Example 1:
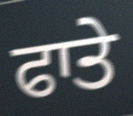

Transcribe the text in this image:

ਫਾਤੇ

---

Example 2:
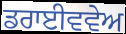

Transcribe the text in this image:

ਡਰਾਈਵਵੇਅ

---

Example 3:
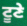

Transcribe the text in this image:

ਟੂਣੇ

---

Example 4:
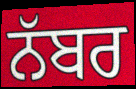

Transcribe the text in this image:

ਨੱਬਰ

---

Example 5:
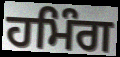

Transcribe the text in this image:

ਹਮਿੰਗ